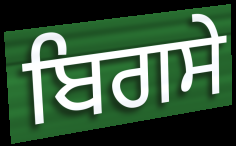
ਬਿਗਸੇ